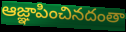
ఆజ్ఞాపించినదంతా